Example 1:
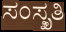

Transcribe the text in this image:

ಸಂಸ್ಖೃತಿ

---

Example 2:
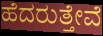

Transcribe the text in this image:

ಹೆದರುತ್ತೇವೆ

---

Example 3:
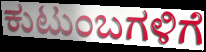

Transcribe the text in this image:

ಕುಟುಂಬಗಳಿಗೆ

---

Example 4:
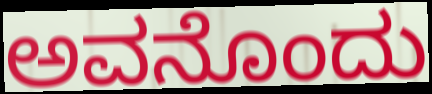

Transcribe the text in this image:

ಅವನೊಂದು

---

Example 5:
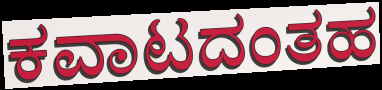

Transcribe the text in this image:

ಕವಾಟದಂತಹ